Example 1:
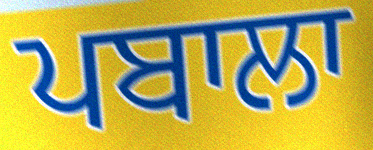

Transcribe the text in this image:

ਪਬਾਲਾ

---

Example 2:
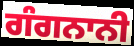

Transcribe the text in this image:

ਗੰਗਨਾਨੀ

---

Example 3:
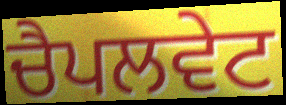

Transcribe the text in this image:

ਚੈਪਲਵੇਟ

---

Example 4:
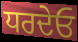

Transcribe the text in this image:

ਧਰਦੇਓ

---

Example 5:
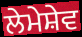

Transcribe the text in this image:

ਲੇਮੇਸ਼ੇਵ